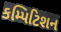
કમ્પિટિશન